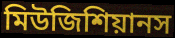
মিউজিশিয়ানস